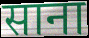
साना